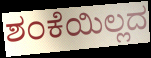
ಶಂಕೆಯಿಲ್ಲದ